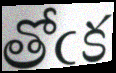
తోఁక